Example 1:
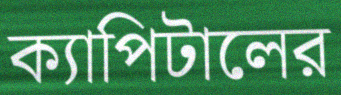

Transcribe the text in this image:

ক্যাপিটালের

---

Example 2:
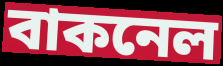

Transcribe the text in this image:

বাকনেল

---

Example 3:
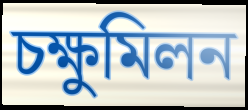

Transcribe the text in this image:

চক্ষুমিলন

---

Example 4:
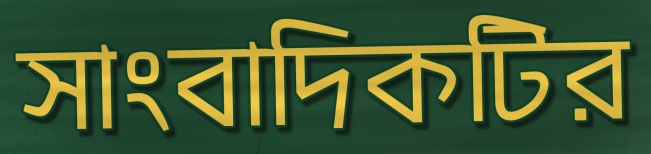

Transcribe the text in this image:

সাংবাদিকটির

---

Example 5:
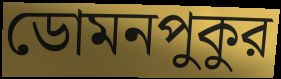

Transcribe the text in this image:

ডোমনপুকুর